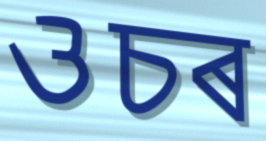
ওচৰ